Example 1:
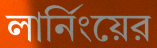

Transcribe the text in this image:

লার্নিংয়ের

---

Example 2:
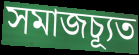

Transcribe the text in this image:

সমাজচ্যূত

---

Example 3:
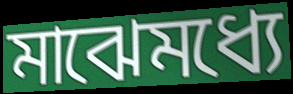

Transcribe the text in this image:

মাঝেমধ্যে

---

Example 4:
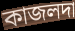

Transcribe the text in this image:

কাজলদা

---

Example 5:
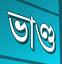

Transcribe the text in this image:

ভাণ্ড